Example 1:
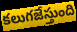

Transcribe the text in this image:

కలుగజేస్తుంది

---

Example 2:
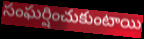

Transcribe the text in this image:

సంఘర్షించుకుంటాయి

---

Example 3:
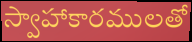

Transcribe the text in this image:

స్వాహాకారములతో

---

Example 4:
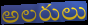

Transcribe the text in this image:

అలరులు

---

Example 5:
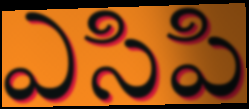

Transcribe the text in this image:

ఎసిపి